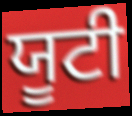
ਯੂਟੀ